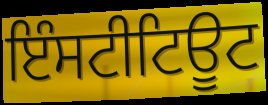
ਇੰਸਟੀਟਿਊਟ